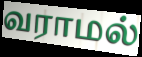
வராமல்